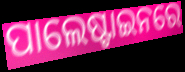
ପାଲେଷ୍ଟାଇନରେ